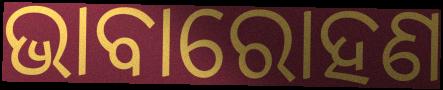
ଭାବାରୋହଣ